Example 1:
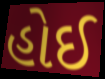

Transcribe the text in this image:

હોઈ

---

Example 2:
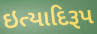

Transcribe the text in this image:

ઇત્યાદિરૂપ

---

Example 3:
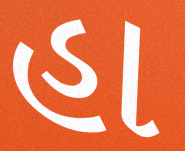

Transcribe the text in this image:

હા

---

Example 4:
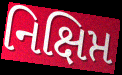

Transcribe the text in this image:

નિક્ષિપ્ત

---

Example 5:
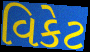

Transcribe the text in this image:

વિકેટ